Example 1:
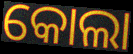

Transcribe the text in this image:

କୋଲା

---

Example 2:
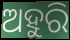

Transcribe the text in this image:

ଅହୁରି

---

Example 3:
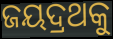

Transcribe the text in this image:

ଜୟଦ୍ରଥକୁ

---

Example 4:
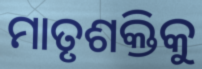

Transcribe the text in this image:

ମାତୃଶକ୍ତିକୁ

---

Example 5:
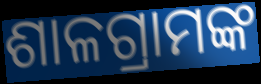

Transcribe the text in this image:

ଶାଳଗ୍ରାମଙ୍କ